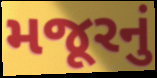
મજૂરનું